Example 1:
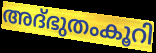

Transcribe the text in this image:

അദ്ഭുതംകൂറി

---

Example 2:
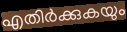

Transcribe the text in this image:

എതിർക്കുകയും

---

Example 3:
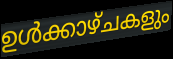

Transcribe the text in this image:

ഉൾക്കാഴ്ചകളും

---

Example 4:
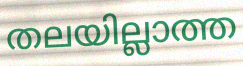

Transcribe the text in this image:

തലയില്ലാത്ത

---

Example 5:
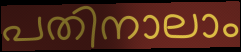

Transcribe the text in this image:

പതിനാലാം